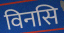
विनसि